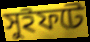
সুইফটে